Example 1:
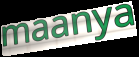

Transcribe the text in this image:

maanya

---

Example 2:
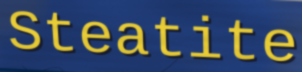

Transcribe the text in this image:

Steatite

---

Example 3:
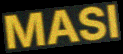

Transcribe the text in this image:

MASI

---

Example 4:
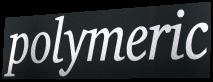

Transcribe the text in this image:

polymeric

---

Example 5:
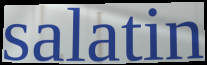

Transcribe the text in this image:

salatin